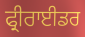
ਫ੍ਰੀਰਾਈਡਰ